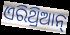
ଏରିଥ୍ରିଆନ୍